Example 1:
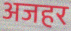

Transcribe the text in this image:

अजहर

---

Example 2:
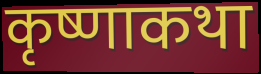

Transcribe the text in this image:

कृष्णाकथा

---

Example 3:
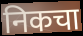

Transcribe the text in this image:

निकचा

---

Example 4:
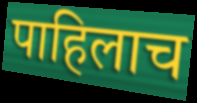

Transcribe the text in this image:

पाहिलाच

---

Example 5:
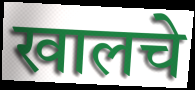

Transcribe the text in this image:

खालचे